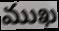
ముఖ